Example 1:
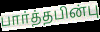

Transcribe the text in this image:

பார்த்தபின்பு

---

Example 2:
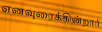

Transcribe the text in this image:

எனவுரைக்கின்றார்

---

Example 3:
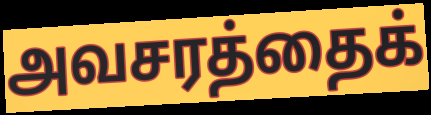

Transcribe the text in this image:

அவசரத்தைக்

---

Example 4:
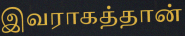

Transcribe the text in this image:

இவராகத்தான்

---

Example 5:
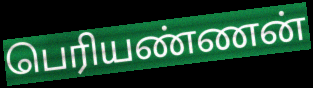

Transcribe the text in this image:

பெரியண்ணன்